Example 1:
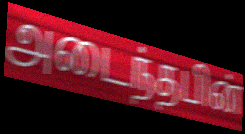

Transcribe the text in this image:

அடைந்தபின்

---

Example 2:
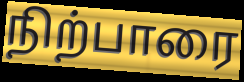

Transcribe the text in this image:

நிற்பாரை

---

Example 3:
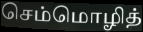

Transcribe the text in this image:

செம்மொழித்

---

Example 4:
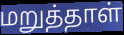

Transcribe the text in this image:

மறுத்தாள்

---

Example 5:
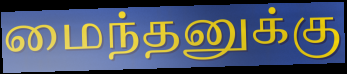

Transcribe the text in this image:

மைந்தனுக்கு